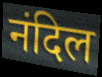
नंदिल